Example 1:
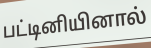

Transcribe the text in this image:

பட்டினியினால்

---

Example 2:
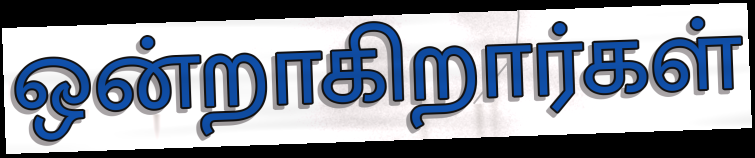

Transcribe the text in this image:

ஒன்றாகிறார்கள்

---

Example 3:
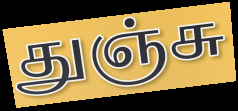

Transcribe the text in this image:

துஞ்சு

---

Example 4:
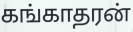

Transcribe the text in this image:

கங்காதரன்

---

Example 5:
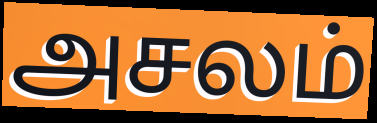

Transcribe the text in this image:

அசலம்